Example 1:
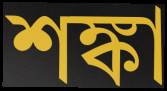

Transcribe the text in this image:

শঙ্কা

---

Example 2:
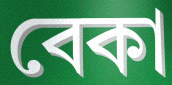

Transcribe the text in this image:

বেকা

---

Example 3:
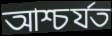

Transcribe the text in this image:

আশ্চৰ্যত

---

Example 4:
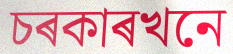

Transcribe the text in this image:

চৰকাৰখনে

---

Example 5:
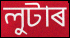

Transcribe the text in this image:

লুটাৰ